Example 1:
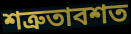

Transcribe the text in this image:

শত্রুতাবশত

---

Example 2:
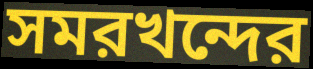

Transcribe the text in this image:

সমরখন্দের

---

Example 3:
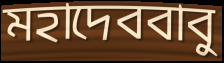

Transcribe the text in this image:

মহাদেববাবু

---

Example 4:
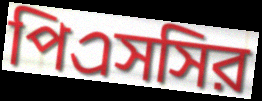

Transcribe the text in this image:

পিএসসির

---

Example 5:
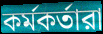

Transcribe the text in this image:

কর্মকর্তারা